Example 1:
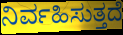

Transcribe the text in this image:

ನಿರ್ವಹಿಸುತ್ತದೆ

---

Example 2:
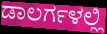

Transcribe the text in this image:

ಡಾಲರ್ಗಳಲ್ಲಿ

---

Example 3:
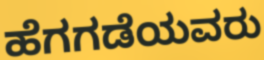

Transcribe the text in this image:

ಹೆಗಗಡೆಯವರು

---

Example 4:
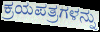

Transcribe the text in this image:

ಕ್ರಯಪತ್ರಗಳನ್ನು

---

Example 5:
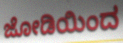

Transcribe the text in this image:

ಜೋಡಿಯಿಂದ